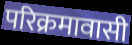
परिक्रमावासी